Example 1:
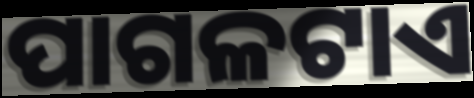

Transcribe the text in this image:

ପାଗଳଟାଏ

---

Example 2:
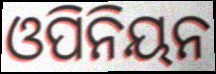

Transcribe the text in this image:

ଓପିନିୟନ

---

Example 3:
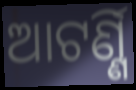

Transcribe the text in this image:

ଆଟର୍ଣ୍ଣି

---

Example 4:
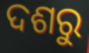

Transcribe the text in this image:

ଦଶରୁ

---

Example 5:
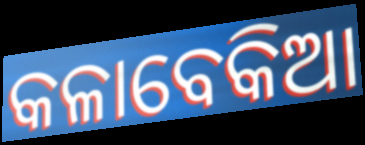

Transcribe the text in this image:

କଳାବେକିଆ